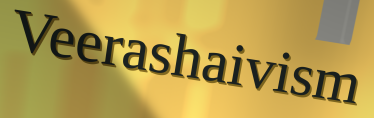
Veerashaivism